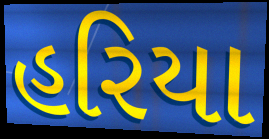
હરિયા